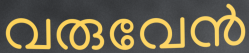
വരുവേൻ